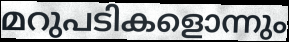
മറുപടികളൊന്നും